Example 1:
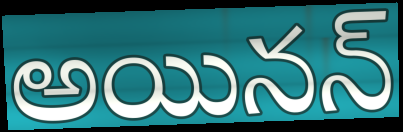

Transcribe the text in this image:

అయినన్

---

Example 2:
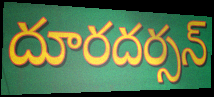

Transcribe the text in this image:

దూరదర్సన్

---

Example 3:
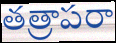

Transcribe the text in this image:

తత్రాపరా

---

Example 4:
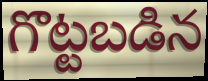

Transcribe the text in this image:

గొట్టబడిన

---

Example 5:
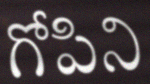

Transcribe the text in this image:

గోపిని